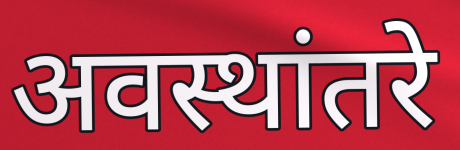
अवस्थांतरे